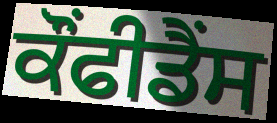
ਕੌਂਫੀਡੈਂਸ